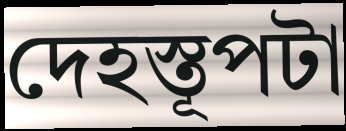
দেহস্তূপটা